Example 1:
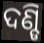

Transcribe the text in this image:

ଦଣ୍ଡି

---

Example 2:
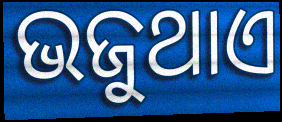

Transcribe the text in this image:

ଭଜୁଥାଏ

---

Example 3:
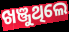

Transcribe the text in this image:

ଖଞ୍ଜୁଥିଲେ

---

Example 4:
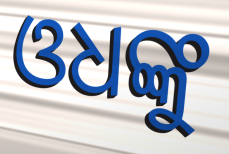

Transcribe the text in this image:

ଓଧଙ୍କୁ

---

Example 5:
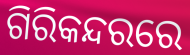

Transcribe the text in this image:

ଗିରିକନ୍ଦରରେ